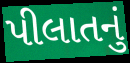
પીલાતનું